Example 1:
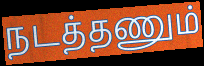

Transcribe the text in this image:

நடத்தணும்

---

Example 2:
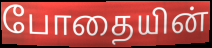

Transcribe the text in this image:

போதையின்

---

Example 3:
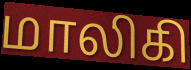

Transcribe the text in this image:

மாலிகி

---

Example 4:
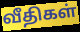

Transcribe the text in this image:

வீதிகள்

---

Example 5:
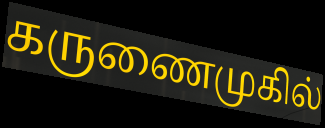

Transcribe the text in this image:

கருணைமுகில்